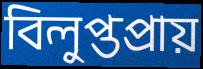
বিলুপ্তপ্ৰায়